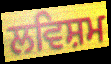
ਲਵਿਸ਼ਮ